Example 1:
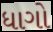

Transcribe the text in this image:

ધાગો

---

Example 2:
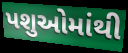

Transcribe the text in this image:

પશુઓમાંથી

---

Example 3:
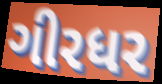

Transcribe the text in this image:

ગીરધર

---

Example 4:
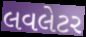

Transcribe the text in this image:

લવલેટર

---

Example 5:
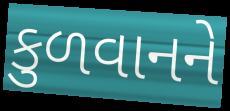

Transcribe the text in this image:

કુળવાનને